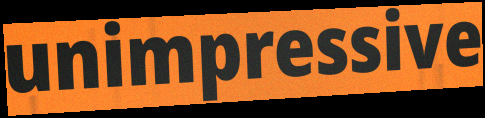
unimpressive